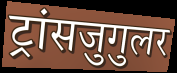
ट्रांसजुगुलर